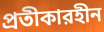
প্রতীকারহীন